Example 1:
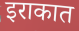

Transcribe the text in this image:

इराकात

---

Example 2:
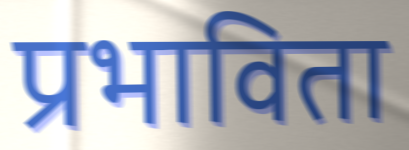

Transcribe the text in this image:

प्रभाविता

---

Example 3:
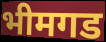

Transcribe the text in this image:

भीमगड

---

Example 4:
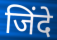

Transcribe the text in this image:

जिंदे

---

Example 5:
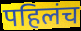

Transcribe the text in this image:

पहिलंच